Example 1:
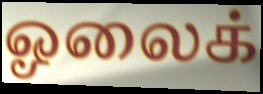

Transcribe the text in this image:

ஓலைக்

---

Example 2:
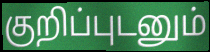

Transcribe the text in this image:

குறிப்புடனும்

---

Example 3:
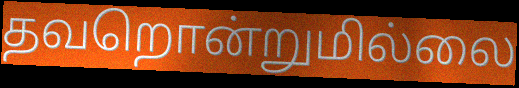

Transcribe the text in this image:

தவறொன்றுமில்லை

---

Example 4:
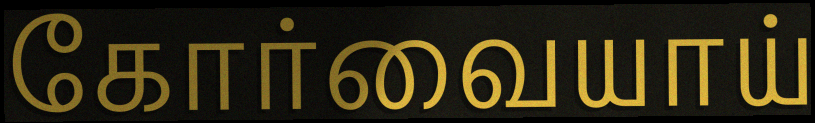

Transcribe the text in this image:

கோர்வையாய்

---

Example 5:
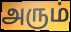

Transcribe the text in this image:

அரும்